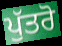
ਪੁੱਤਰੋ